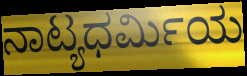
ನಾಟ್ಯಧರ್ಮಿಯ